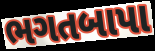
ભગતબાપા